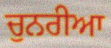
ਚੁਨਰੀਆ